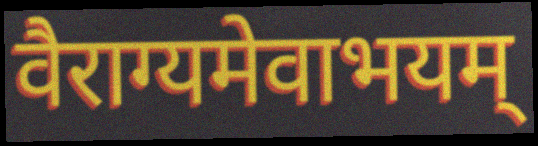
वैराग्यमेवाभयम्